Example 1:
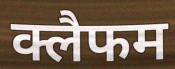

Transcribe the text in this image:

क्लैफम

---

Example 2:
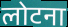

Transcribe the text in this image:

लोटना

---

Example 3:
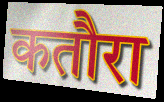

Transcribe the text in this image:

कतौरा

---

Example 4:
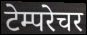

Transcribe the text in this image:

टेम्परेचर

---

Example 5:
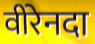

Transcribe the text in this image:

वीरेनदा